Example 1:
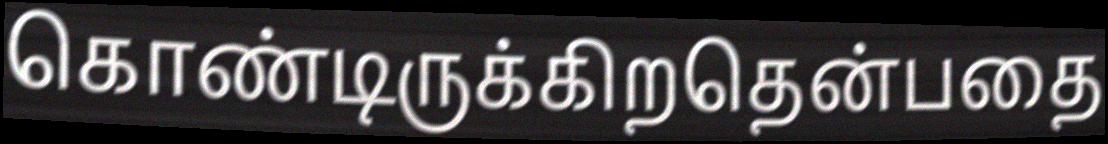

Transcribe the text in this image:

கொண்டிருக்கிறதென்பதை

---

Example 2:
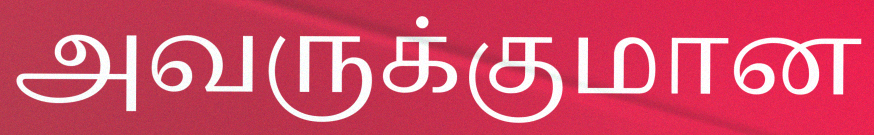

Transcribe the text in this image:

அவருக்குமான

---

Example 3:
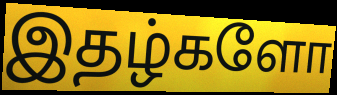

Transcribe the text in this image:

இதழ்களோ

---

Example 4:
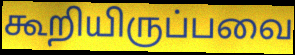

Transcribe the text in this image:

கூறியிருப்பவை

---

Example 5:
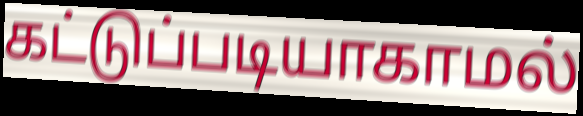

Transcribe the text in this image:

கட்டுப்படியாகாமல்